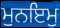
ਮੁਨਇਮੁ